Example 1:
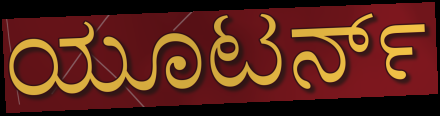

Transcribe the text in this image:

ಯೂಟರ್ನ್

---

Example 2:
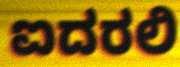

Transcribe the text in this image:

ಐದರಲಿ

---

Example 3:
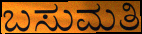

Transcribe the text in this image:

ಬಸುಮತಿ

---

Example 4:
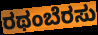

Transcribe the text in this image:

ರಥಂಬೆರಸು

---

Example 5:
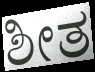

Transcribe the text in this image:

ಶೀತ